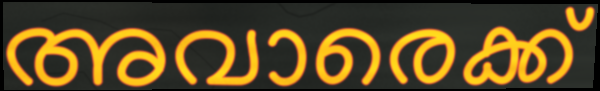
അവാരെക്ക്